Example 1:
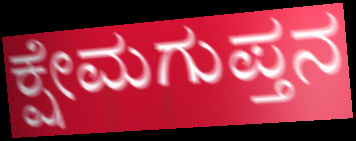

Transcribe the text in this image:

ಕ್ಷೇಮಗುಪ್ತನ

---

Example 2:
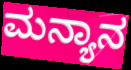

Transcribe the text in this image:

ಮನ್ಯಾನ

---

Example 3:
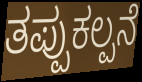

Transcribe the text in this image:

ತಪ್ಪುಕಲ್ಪನೆ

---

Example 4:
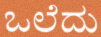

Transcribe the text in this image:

ಒಲೆದು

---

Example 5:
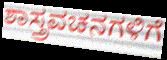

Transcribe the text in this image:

ಶಾಸ್ತ್ರವಚನಗಳಿಗೆ